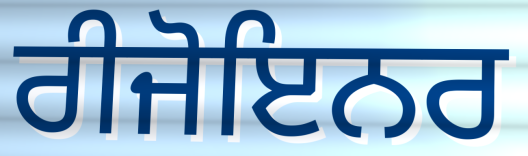
ਰੀਜੋਇਨਰ